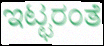
ಇಟ್ಟರಂತೆ